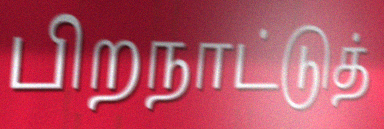
பிறநாட்டுத்